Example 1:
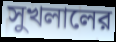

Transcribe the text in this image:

সুখলালের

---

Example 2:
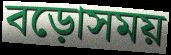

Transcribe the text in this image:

বড়োসময়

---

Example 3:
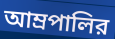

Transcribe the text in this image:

আম্রপালির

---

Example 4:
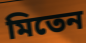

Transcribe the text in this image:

মিতেন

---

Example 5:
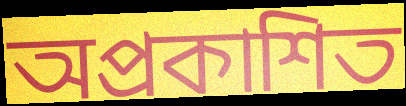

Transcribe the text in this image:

অপ্রকাশিত